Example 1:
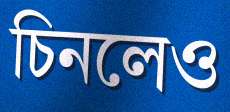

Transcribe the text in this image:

চিনলেও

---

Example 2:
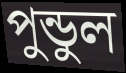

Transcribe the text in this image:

পুন্ডুল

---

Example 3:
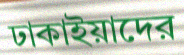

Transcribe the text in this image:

ঢাকাইয়াদের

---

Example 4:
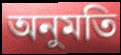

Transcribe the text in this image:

অনুমতি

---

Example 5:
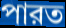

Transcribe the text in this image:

পারত